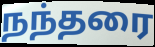
நந்தரை